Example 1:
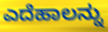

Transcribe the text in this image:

ಎದೆಹಾಲನ್ನು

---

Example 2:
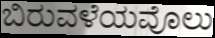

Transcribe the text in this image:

ಬಿರುವಳೆಯವೊಲು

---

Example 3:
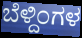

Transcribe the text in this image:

ಬೆಳ್ದಿಂಗಳ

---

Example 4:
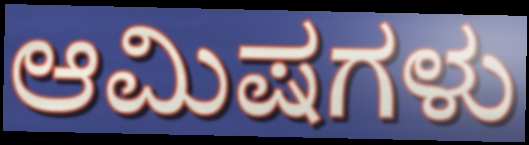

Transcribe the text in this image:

ಆಮಿಷಗಳು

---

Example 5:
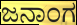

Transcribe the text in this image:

ಜನಾಂಗ